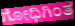
ಗೋಧಿಗಿಂತ